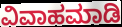
ವಿವಾಹಮಾಡಿ